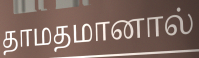
தாமதமானால்